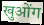
खुओंग